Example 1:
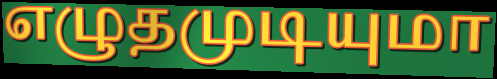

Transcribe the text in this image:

எழுதமுடியுமா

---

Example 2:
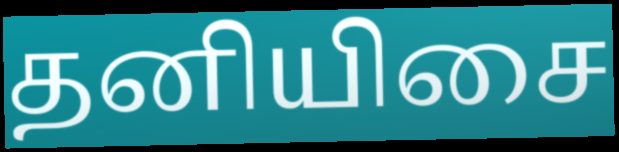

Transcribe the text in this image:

தனியிசை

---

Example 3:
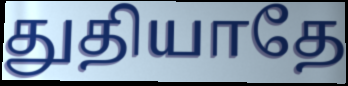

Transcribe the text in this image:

துதியாதே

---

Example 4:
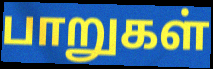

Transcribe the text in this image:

பாறுகள்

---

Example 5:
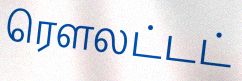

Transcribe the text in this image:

ரௌலட்டட்